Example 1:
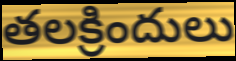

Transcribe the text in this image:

తలక్రిందులు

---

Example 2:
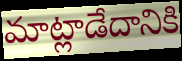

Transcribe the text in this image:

మాట్లాడేదానికి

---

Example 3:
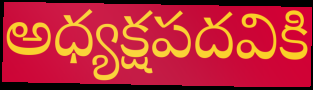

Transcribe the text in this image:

అధ్యక్షపదవికి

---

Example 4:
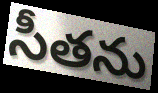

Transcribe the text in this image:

సీతను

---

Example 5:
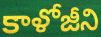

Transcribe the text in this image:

కాళోజీని